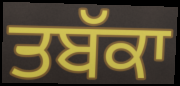
ਤਬੱਕਾ